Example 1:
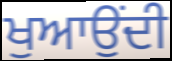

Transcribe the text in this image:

ਖੁਆਉਂਦੀ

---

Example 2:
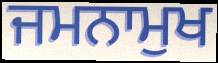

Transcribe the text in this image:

ਜਮਨਾਮੁਖ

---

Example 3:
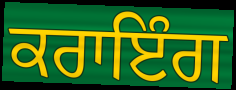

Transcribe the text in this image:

ਕਰਾਇੰਗ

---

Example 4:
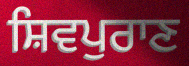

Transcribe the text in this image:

ਸ਼ਿਵਪੁਰਾਣ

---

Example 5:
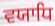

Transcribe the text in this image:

ਵਯਾਧਿ